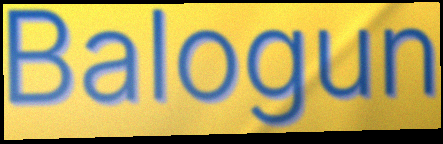
Balogun